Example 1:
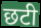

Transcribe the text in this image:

छटी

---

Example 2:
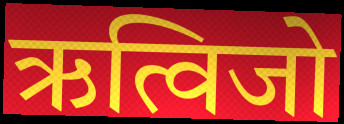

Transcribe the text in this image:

ऋत्विजो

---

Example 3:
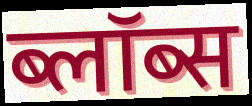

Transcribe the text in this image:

ब्लॉब्स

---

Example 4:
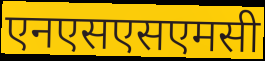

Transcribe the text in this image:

एनएसएसएमसी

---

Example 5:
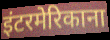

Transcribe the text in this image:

इंटरमेरिकाना